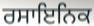
ਰਸਾਇਨਿਕ